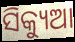
ସିକ୍ୟୁଆ